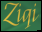
Ziqi